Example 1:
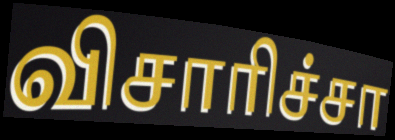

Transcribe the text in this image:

விசாரிச்சா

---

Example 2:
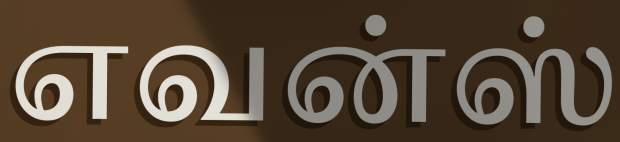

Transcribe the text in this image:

எவன்ஸ்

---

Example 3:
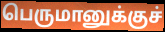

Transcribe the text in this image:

பெருமானுக்குச்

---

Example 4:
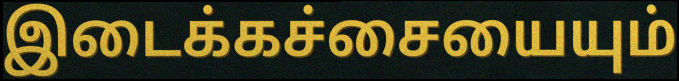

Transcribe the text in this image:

இடைக்கச்சையையும்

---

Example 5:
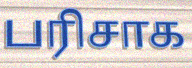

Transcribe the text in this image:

பரிசாக